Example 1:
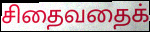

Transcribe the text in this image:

சிதைவதைக்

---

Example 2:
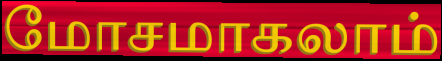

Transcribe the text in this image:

மோசமாகலாம்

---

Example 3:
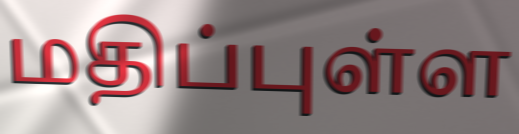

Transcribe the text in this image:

மதிப்புள்ள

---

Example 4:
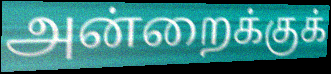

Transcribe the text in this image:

அன்றைக்குக்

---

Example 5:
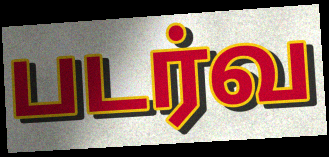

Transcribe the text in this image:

படர்வ